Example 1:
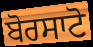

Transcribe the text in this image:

ਬੋਰਸਾਟੋ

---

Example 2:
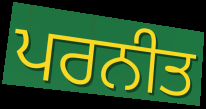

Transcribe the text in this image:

ਪਰਨੀਤ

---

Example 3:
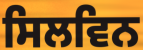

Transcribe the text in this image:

ਸਿਲਵਿਨ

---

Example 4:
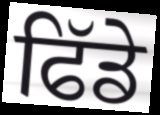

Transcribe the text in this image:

ਫਿੱਡੇ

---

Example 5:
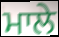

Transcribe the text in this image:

ਮਾਲੇ